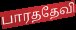
பாரததேவி